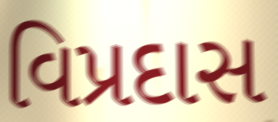
વિપ્રદાસ